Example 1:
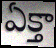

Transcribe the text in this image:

ఏక్తా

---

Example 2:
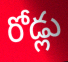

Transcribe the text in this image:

రోడ్లు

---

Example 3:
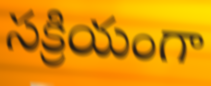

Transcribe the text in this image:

సక్రియంగా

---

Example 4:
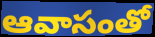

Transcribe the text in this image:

ఆవాసంతో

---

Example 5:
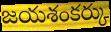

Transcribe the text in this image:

జయశంకర్కు